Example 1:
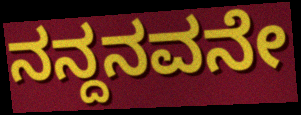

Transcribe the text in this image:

ನನ್ದನವನೇ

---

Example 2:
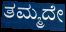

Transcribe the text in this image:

ತಮ್ಮದೇ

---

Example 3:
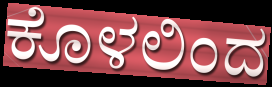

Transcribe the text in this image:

ಕೊಳಲಿಂದ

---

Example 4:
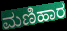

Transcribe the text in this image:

ಮಣಿಹಾರ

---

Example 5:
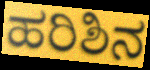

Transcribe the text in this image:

ಹರಿಶಿನ